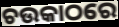
ଚଉକାଠରେ